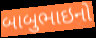
બાબુભાઇનો